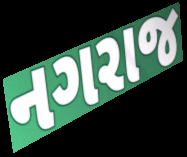
નગરાજ